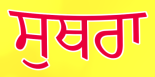
ਸੁਥਰਾ